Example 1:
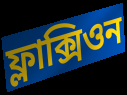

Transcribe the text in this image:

ফ্লাক্সিওন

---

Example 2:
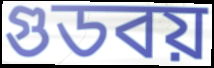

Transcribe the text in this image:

গুডবয়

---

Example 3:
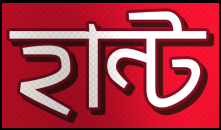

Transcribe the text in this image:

হান্ট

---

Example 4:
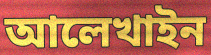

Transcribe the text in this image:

আলেখাইন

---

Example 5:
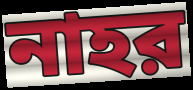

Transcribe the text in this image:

নাহর